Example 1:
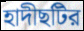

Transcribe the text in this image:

হাদীছটির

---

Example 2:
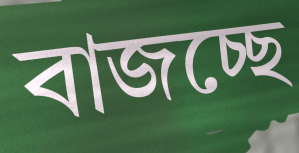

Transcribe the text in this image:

বাজচ্ছে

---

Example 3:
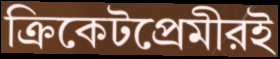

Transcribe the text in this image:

ক্রিকেটপ্রেমীরই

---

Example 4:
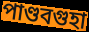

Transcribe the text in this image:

পাণ্ডবগুহা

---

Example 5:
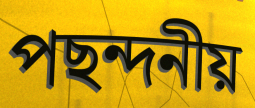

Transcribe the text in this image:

পছন্দনীয়